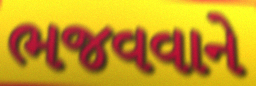
ભજવવાને